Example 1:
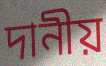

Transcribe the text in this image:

দানীয়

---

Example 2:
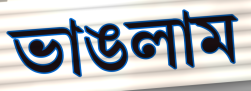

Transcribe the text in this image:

ভাঙলাম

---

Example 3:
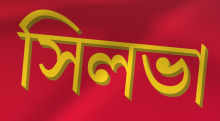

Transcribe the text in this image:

সিলভা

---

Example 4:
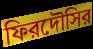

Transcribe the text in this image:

ফিরদৌসির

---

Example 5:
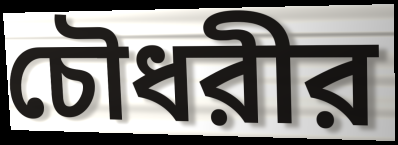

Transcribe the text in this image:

চৌধরীর